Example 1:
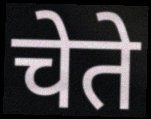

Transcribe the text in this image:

चेते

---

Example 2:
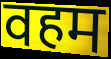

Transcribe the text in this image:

वहम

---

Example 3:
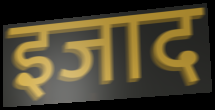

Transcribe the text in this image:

इजाद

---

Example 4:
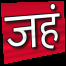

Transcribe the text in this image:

जहं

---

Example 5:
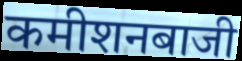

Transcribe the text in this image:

कमीशनबाजी